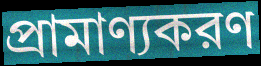
প্রামাণ্যকরণ